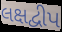
લક્ષદ્વીપ